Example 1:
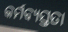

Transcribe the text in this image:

କର୍ମବ୍ୟସ୍ତତା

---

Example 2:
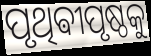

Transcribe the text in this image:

ପୃଥିଵୀପୃଷ୍ଠକୁ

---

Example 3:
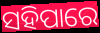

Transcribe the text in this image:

ସହିପାରେ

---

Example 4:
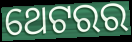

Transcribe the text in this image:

ଥେଟରର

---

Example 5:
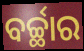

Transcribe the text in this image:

ବର୍ଚ୍ଛାର